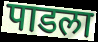
पाडला